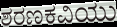
ಶರಣಕವಿಯು